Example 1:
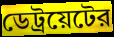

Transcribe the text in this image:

ডেট্রয়েটের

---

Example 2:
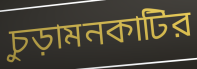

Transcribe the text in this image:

চুড়ামনকাটির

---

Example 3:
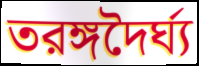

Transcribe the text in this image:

তরঙ্গদৈর্ঘ্য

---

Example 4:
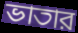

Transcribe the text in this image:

ভাতার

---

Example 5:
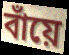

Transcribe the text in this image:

বাঁয়ে